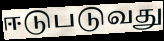
ஈடுபடுவது